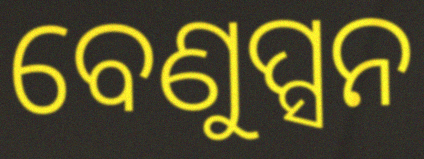
ବେଣୁପ୍ସନ